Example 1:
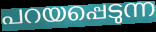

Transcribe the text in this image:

പറയപ്പെടുന്ന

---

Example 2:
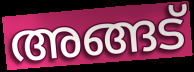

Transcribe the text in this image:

അങ്ങട്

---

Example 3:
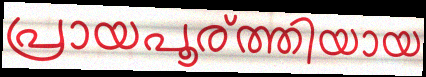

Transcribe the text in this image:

പ്രായപൂര്ത്തിയായ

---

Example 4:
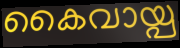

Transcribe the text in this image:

കൈവായ്പ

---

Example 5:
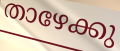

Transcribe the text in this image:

താഴേക്കു